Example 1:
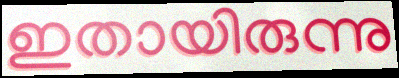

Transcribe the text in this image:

ഇതായിരുന്നു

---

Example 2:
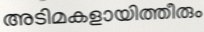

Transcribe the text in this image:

അടിമകളായിത്തീരും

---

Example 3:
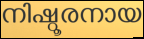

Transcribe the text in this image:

നിഷ്ഠൂരനായ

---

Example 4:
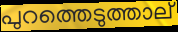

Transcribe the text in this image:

പുറത്തെടുത്താല്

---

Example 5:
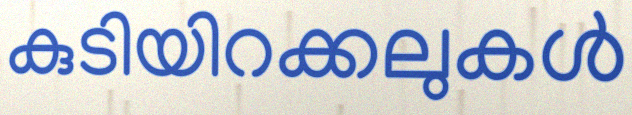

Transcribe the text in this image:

കുടിയിറക്കലുകൾ